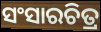
ସଂସାରଚିତ୍ର